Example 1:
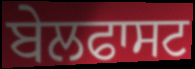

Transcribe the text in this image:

ਬੇਲਫਾਸਟ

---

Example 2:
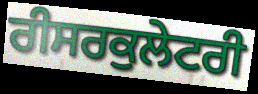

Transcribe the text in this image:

ਰੀਸਰਕੁਲੇਟਰੀ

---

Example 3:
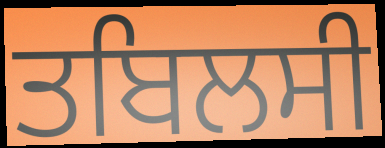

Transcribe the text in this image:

ਤਬਿਲਸੀ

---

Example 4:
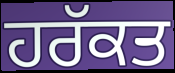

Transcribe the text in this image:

ਹਰੱਕਤ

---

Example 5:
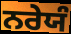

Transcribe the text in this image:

ਨਰੇਯੰ